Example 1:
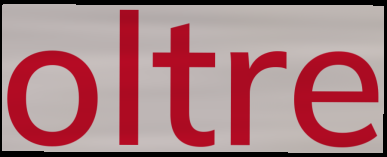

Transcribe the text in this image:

oltre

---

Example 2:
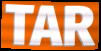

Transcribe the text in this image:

TAR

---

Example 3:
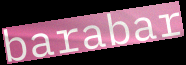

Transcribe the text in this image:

barabar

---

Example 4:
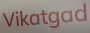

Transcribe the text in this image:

Vikatgad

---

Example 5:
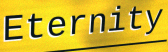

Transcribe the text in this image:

Eternity